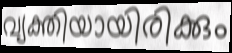
വ്യക്തിയായിരിക്കും